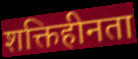
शक्तिहीनता